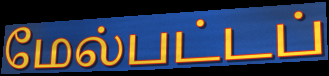
மேல்பட்டப்